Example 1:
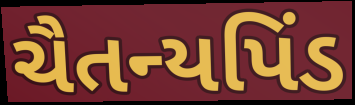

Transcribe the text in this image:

ચૈતન્યપિંડ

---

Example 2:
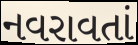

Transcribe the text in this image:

નવરાવતાં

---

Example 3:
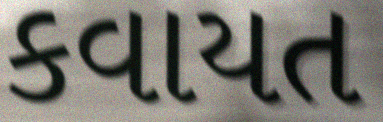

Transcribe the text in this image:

કવાયત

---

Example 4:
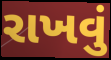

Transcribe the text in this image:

રાખવું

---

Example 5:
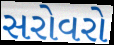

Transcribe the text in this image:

સરોવરો